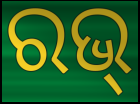
ରଭ୍